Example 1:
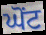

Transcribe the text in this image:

ਘੋਂਟ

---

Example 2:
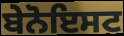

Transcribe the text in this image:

ਬੇਨੋਇਸਟ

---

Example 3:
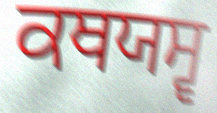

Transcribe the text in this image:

ਕਥਯਸ੍ਵ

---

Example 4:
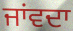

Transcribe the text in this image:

ਜਾਂਵਦਾ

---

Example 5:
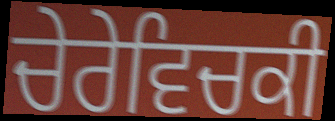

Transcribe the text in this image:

ਚੇਰੇਵਿਚਕੀ